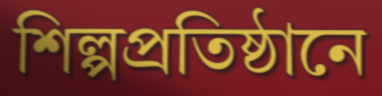
শিল্পপ্রতিষ্ঠানে